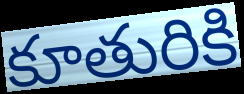
కూతురికి